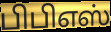
பிபிஎஸ்